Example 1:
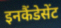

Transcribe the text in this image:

इनकैंडेसेंट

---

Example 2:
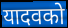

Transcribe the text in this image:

यादवको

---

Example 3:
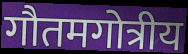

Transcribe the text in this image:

गौतमगोत्रीय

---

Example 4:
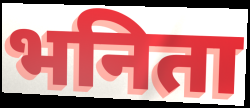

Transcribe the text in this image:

भनिता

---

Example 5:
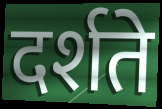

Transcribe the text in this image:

दर्शते